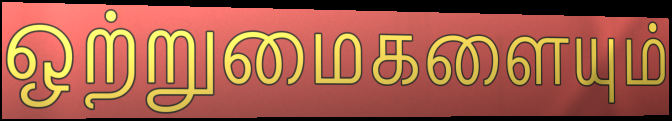
ஒற்றுமைகளையும்